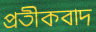
প্ৰতীকবাদ